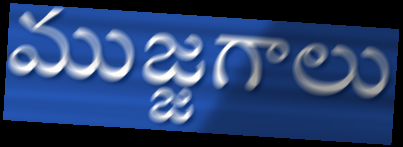
ముజ్జగాలు